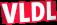
VLDL